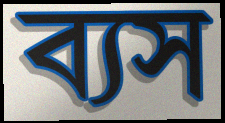
ব্যস